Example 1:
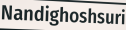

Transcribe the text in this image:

Nandighoshsuri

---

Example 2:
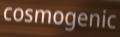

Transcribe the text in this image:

cosmogenic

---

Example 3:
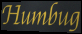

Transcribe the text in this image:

Humbug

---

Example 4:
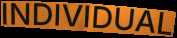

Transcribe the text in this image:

INDIVIDUAL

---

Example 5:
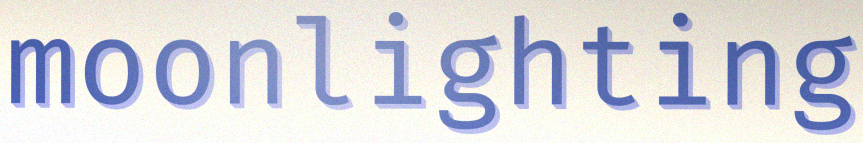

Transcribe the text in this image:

moonlighting